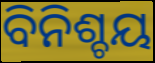
ବିନିଶ୍ଚୟ